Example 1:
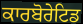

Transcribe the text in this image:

ਕਾਰਬੋਰੇਟਿਡ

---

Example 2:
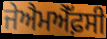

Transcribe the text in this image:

ਜੇਐਮਐੱਫ਼ਸੀ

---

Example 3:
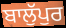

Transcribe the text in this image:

ਬਾਲੁੱਪੁਰ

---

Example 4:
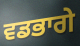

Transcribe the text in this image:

ਵਡਭਾਗੇ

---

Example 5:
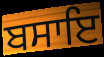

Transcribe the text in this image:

ਬਸਾਇ